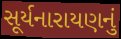
સૂર્યનારાયણનું